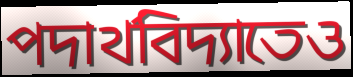
পদার্থবিদ্যাতেও